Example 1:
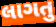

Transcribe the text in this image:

લાગતુ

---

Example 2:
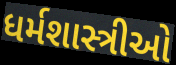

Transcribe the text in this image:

ધર્મશાસ્ત્રીઓ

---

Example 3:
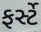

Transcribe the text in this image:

ફર્સ્ટે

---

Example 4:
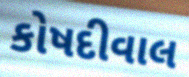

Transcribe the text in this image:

કોષદીવાલ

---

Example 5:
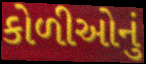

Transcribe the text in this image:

કોળીઓનું